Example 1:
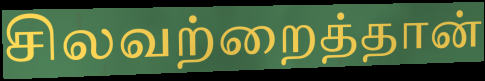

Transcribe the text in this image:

சிலவற்றைத்தான்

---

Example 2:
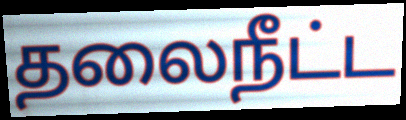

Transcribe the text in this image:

தலைநீட்ட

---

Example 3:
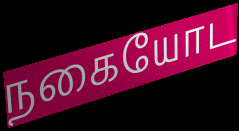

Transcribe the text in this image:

நகையோட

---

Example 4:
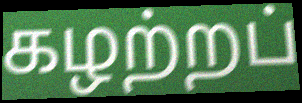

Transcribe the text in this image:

கழற்றப்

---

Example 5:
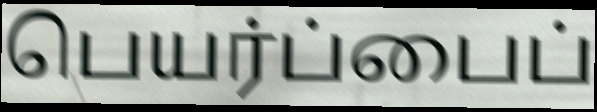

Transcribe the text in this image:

பெயர்ப்பைப்